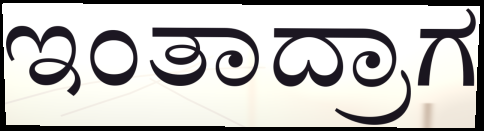
ಇಂತಾದ್ರಾಗ